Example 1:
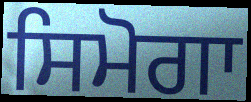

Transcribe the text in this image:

ਸਿਮੋਗਾ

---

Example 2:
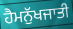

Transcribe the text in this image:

ਹੈਮਨੁੱਖਜਾਤੀ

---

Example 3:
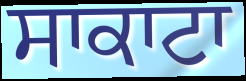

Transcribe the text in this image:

ਸਾਕਾਟਾ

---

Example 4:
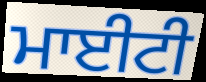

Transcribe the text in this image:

ਮਾਈਟੀ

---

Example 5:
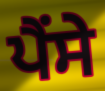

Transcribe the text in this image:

ਪੈਂਸੇ